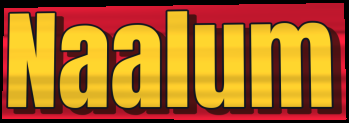
Naalum